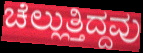
ಚೆಲ್ಲುತ್ತಿದ್ದವು